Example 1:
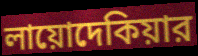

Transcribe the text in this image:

লায়োদেকিয়ার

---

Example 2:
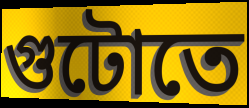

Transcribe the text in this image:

গুটোতে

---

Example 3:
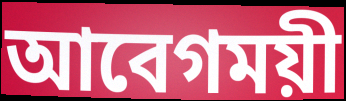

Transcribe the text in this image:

আবেগময়ী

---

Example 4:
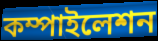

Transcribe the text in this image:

কম্পাইলেশন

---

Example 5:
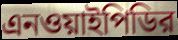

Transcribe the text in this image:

এনওয়াইপিডির